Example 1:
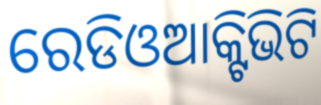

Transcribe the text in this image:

ରେଡିଓଆକ୍ଟିଭିଟି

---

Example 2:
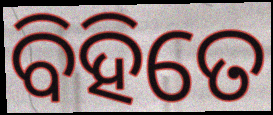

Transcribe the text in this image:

ବିହିତେ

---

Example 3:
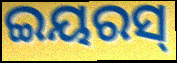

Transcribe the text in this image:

ଇୟରସ୍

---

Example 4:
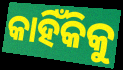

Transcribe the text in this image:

କାହିଁକିକୁ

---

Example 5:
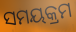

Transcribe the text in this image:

ସମୟକ୍ରମ